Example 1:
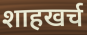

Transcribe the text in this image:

शाहखर्च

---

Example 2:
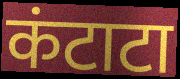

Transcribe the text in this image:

कंटाटा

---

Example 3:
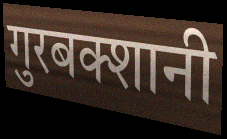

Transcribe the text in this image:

गुरबक्शानी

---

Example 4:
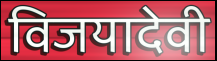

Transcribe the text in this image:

विजयादेवी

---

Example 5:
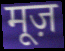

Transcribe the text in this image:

मूज़